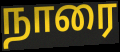
நாரை